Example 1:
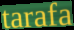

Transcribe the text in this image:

tarafa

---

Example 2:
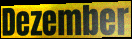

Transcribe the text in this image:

Dezember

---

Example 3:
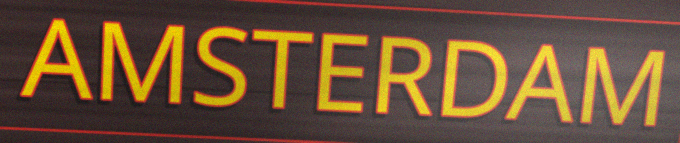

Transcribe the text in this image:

AMSTERDAM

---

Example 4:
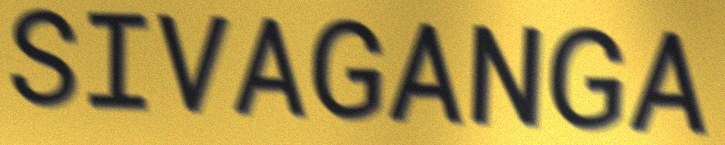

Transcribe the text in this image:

SIVAGANGA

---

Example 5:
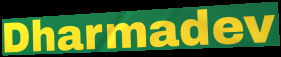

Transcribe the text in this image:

Dharmadev